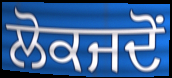
ਲੋਕਜਦੋਂ